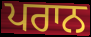
ਪਰਾਨ